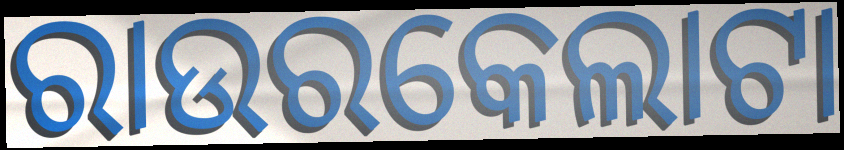
ରାଉରକେଲାଟା